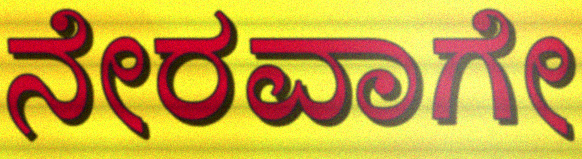
ನೇರವಾಗೇ